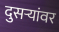
दुसर्‍यांवर